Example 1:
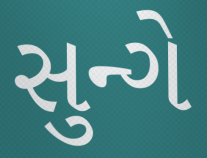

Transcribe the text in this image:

સુન્ગે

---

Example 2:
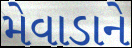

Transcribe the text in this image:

મેવાડાને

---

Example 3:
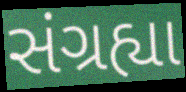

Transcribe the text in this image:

સંગ્રહ્યા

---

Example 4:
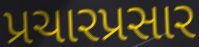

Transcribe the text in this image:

પ્રચારપ્રસાર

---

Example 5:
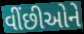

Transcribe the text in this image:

વીંછીઓને